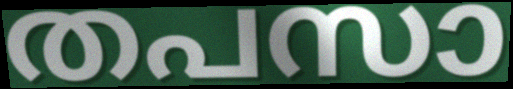
തപസാ